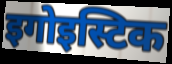
इगोइस्टिक